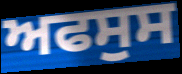
ਅਫਸੁਸ